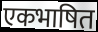
एकभाषित